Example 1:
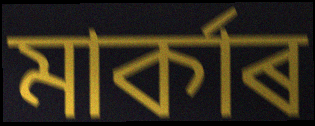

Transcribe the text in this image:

মাৰ্কাৰ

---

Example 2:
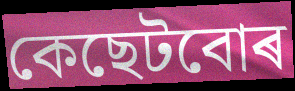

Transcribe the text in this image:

কেছেটবোৰ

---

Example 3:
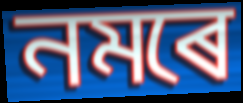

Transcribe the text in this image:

নমৰে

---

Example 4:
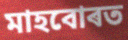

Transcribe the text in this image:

মাহবোৰত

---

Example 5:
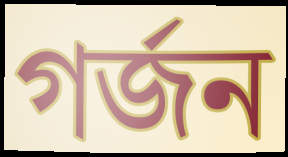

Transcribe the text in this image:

গৰ্জন